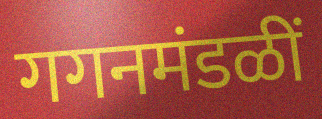
गगनमंडळीं